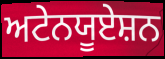
ਅਟੇਨਯੂਏਸ਼ਨ